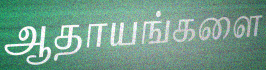
ஆதாயங்களை